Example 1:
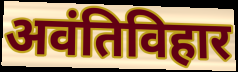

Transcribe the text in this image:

अवंतिविहार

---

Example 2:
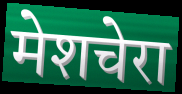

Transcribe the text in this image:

मेशचेरा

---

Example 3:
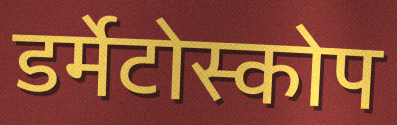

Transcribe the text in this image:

डर्मेटोस्कोप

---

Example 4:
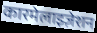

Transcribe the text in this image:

कारमेलाइज़ेशन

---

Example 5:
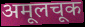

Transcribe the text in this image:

अमूलचूक